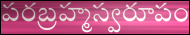
పరబ్రహ్మస్వరూపం